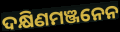
ଦକ୍ଷିଣମଞ୍ଜନେନ